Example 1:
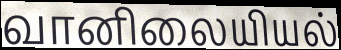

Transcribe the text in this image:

வானிலையியல்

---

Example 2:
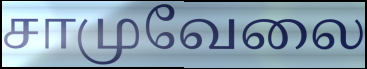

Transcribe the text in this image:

சாமுவேலை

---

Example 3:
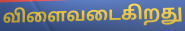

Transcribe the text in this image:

விளைவடைகிறது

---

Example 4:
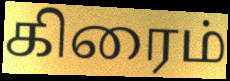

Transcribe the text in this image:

கிரைம்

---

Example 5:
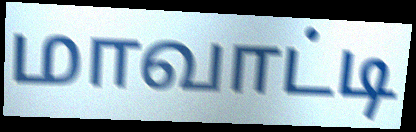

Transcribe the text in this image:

மாவாட்டி